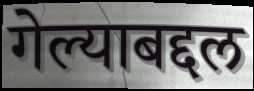
गेल्याबद्दल